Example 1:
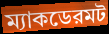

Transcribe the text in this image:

ম্যাকডেরমট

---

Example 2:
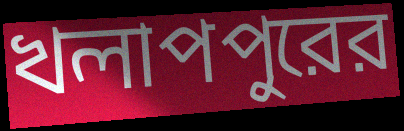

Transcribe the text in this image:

খলাপপুরের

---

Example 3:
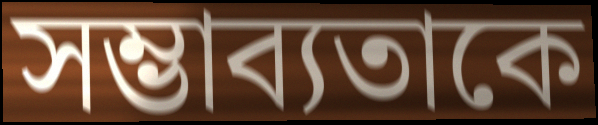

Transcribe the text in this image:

সম্ভাব্যতাকে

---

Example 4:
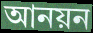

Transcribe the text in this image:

আনয়ন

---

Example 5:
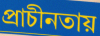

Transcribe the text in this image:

প্রাচীনতায়